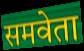
समवेता